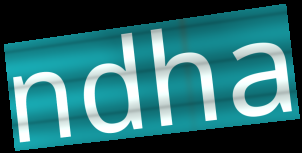
ndha